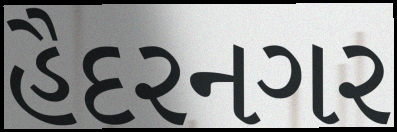
હૈદરનગર